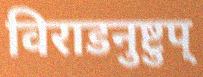
विराडनुष्टुप्